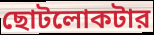
ছোটলোকটার